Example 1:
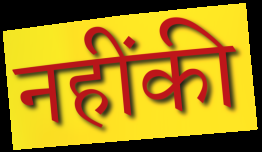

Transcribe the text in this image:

नहींकी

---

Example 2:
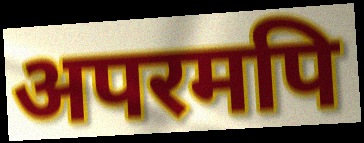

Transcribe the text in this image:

अपरमपि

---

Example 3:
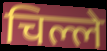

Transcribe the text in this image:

चिल्ले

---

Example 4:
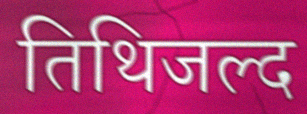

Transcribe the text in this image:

तिथिजल्द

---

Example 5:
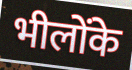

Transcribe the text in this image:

भीलोंके